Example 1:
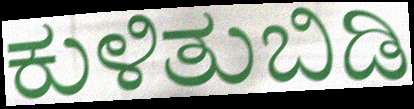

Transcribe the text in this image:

ಕುಳಿತುಬಿಡಿ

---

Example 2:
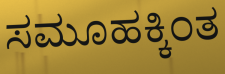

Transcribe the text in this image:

ಸಮೂಹಕ್ಕಿಂತ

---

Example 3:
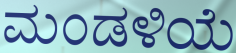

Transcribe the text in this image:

ಮಂಡಳಿಯೆ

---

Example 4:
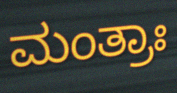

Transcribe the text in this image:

ಮಂತ್ರಾಃ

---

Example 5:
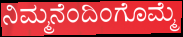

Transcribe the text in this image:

ನಿಮ್ಮನೆಂದಿಂಗೊಮ್ಮೆ